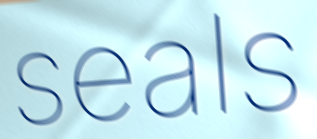
seals